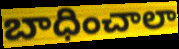
బాధించాలా